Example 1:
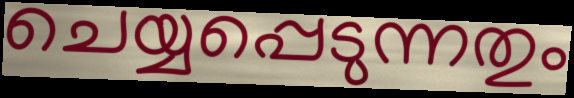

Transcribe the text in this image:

ചെയ്യപ്പെടുന്നതും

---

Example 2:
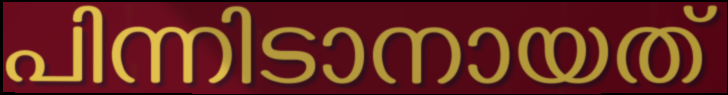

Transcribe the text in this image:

പിന്നിടാനായത്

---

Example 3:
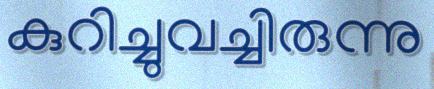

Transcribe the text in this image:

കുറിച്ചുവച്ചിരുന്നു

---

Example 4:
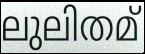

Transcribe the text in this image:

ലുലിതമ്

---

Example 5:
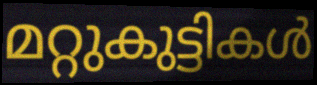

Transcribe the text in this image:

മറ്റുകുട്ടികൾ